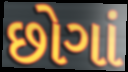
છોગાં